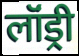
लॉंड्री